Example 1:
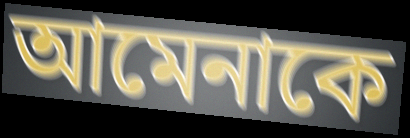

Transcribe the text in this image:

আমেনাকে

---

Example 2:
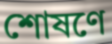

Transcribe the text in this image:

শোষণে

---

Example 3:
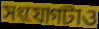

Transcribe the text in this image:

সংযোগটাও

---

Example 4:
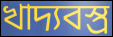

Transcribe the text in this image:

খাদ্যবস্ত্র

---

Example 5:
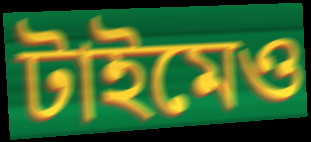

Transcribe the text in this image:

টাইমেও